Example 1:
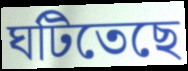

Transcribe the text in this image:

ঘটিতেছে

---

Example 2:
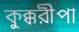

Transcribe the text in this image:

কুক্করীপা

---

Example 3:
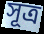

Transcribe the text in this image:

সূত্র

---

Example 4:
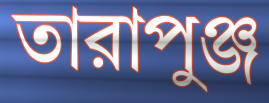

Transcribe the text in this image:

তারাপুঞ্জ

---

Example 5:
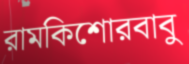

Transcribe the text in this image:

রামকিশোরবাবু